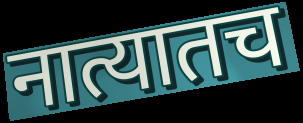
नात्यातच